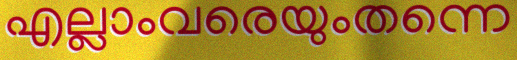
എല്ലാംവരെയുംതന്നെ